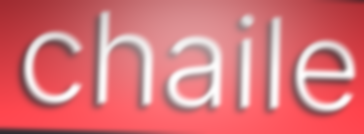
chaile